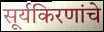
सूर्यकिरणांचे